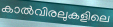
കാൽവിരലുകളിലെ